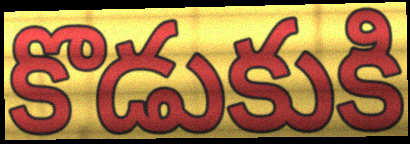
కొడుకుకి